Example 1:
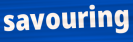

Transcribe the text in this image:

savouring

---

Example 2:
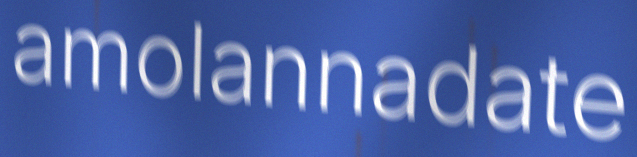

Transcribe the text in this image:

amolannadate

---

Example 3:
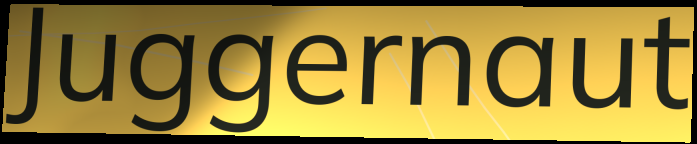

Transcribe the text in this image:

Juggernaut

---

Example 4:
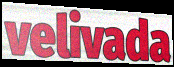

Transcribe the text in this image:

velivada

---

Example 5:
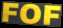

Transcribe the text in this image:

FOF